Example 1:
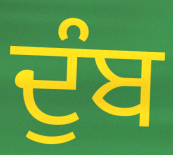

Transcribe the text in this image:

ਦੁੰਬ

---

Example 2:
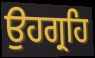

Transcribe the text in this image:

ਉਹਗ੍ਰਹਿ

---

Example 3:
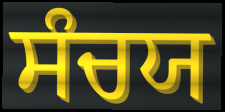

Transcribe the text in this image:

ਸੰਚਯ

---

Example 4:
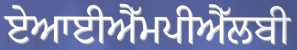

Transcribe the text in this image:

ਏਆਈਐੱਮਪੀਐੱਲਬੀ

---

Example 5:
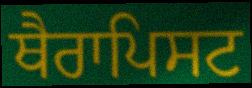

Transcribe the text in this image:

ਥੈਰਾਪਿਸਟ